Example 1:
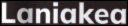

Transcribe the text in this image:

Laniakea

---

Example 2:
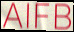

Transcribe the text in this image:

AIFB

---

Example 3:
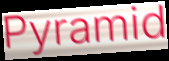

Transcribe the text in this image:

Pyramid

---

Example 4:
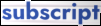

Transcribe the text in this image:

subscript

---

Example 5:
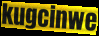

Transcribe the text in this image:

kugcinwe